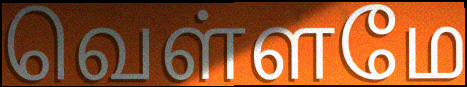
வெள்ளமே